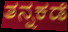
ತನ್ನಕಡೆ